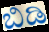
ಬಿಡಿ